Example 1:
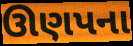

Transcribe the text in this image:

ઊણપના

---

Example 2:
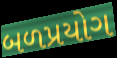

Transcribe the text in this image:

બળપ્રયોગ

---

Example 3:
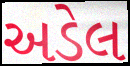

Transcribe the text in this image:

અડેલ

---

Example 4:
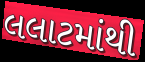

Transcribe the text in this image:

લલાટમાંથી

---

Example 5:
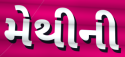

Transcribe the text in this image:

મેથીની